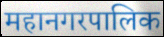
महानगरपालिक